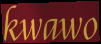
kwawo